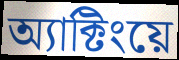
অ্যাক্টিংয়ে